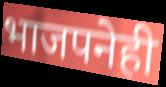
भाजपनेही